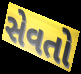
સેવતો